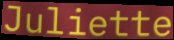
Juliette